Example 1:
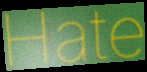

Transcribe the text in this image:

Hate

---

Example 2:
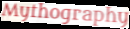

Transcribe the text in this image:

Mythography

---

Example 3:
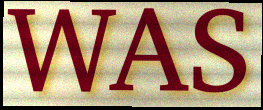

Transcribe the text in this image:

WAS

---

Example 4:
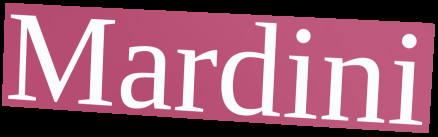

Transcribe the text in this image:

Mardini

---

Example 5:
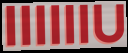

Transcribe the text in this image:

IIIIIIU